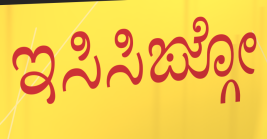
ಇಸಿಸಿಙ್ಗೋ